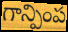
గాన్పింప